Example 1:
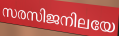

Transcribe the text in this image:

സരസിജനിലയേ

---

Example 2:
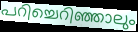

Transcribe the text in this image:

പറിച്ചെറിഞ്ഞാലും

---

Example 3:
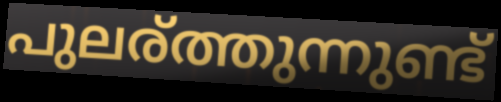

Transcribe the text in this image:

പുലര്ത്തുന്നുണ്ട്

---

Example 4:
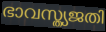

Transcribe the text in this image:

ഭാവസ്ത്യജതി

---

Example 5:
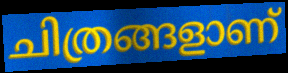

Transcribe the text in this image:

ചിത്രങ്ങളാണ്